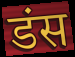
डंस